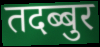
तदब्बुर